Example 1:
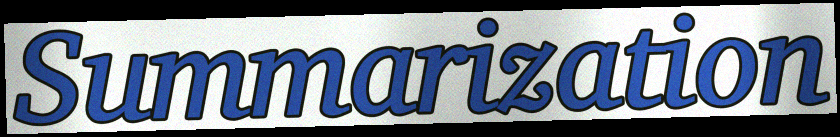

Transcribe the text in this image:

Summarization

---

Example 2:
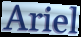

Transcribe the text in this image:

Ariel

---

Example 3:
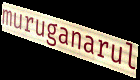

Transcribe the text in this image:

muruganarul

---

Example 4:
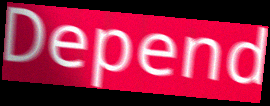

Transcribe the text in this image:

Depend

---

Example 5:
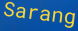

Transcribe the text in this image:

Sarang